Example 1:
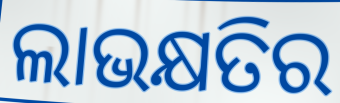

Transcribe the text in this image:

ଲାଭକ୍ଷତିର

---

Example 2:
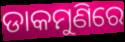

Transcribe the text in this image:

ଡାକମୁଣିରେ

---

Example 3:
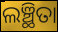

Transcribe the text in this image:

ଲଞ୍ଛିତା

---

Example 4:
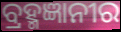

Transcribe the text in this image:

ବ୍ରହ୍ମଜ୍ଞାନୀର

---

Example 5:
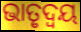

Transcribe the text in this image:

ଭାତୃଦ୍ବୟ